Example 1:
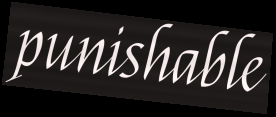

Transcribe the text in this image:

punishable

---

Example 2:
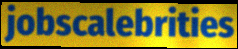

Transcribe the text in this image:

jobscalebrities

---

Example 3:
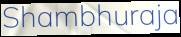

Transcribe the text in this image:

Shambhuraja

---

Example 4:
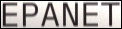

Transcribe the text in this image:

EPANET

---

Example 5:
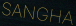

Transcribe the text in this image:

SANGHA